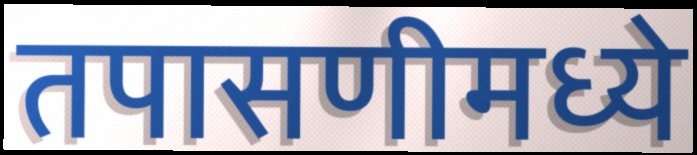
तपासणीमध्ये